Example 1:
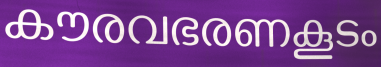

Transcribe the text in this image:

കൗരവഭരണകൂടം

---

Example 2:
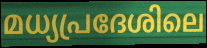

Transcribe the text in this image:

മധ്യപ്രദേശിലെ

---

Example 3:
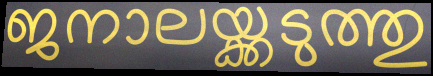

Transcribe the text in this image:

ജനാലയ്ക്കടുത്തു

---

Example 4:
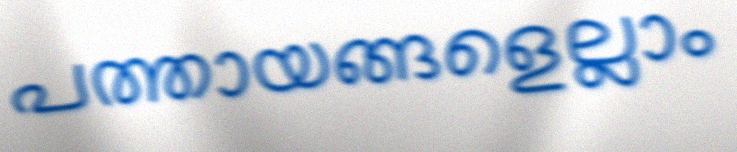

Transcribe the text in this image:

പത്തായങ്ങളെല്ലാം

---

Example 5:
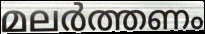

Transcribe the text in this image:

മലർത്തണം